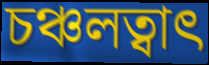
চঞ্চলত্বাৎ